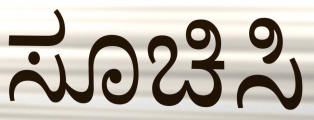
ಸೂಚಿಸಿ